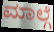
ಮಾಲ್ಗೆ